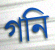
গনি